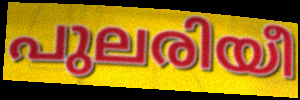
പുലരിയീ